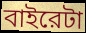
বাইরেটা